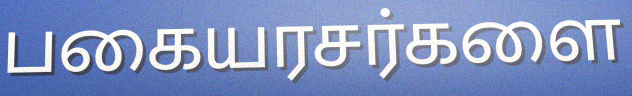
பகையரசர்களை